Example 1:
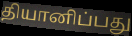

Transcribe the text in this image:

தியானிப்பது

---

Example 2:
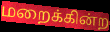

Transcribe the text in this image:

மறைக்கின்ற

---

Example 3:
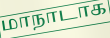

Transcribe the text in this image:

மாநாடாக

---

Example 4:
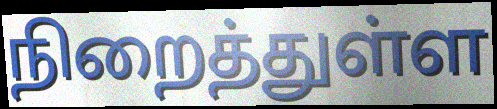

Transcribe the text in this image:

நிறைத்துள்ள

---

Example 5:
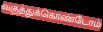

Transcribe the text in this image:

வகுத்துக்கொண்டோம்